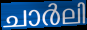
ചാർലി